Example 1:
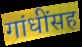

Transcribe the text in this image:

गांधींसह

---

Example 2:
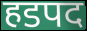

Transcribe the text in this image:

हडपद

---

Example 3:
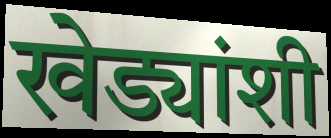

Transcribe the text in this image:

खेड्यांशी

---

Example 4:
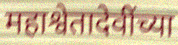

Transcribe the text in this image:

महाश्वेतादेवींच्या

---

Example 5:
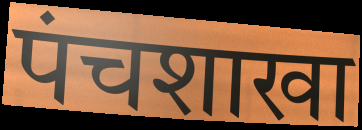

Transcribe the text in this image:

पंचशाखा